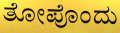
ತೋಪೊಂದು